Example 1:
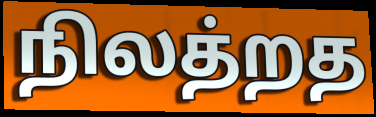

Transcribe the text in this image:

நிலத்றத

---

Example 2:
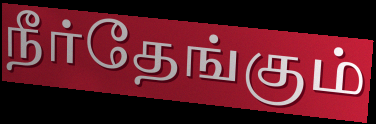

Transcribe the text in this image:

நீர்தேங்கும்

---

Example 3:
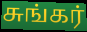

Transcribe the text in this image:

சுங்கர்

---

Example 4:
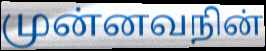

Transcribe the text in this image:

முன்னவநின்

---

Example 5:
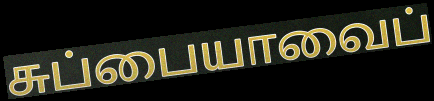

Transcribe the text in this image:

சுப்பையாவைப்